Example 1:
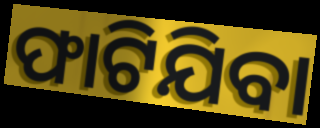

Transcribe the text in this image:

ଫାଟିଯିବା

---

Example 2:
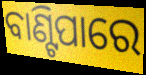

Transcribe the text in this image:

ବାଣ୍ଟିପାରେ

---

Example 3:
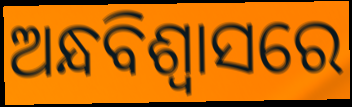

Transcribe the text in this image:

ଅନ୍ଧବିଶ୍ବାସରେ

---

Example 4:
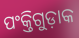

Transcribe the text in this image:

ପଂକ୍ତିଗୁଡ଼ାକ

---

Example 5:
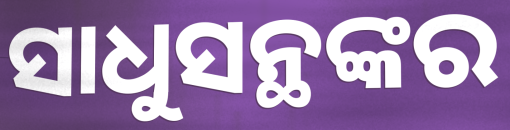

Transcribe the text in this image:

ସାଧୁସନ୍ଥଙ୍କର